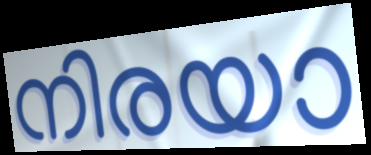
നിരയാ